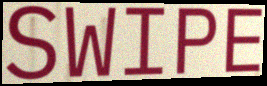
SWIPE